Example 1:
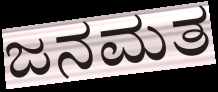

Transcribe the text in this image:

ಜನಮತ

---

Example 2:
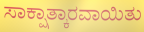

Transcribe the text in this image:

ಸಾಕ್ಷಾತ್ಕಾರವಾಯಿತು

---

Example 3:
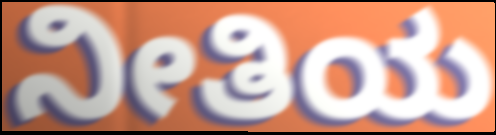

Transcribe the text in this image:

ನೀತಿಯ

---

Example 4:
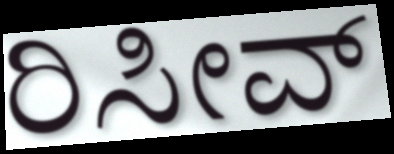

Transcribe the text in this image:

ರಿಸೀವ್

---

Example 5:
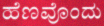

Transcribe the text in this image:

ಹೆಣವೊಂದು